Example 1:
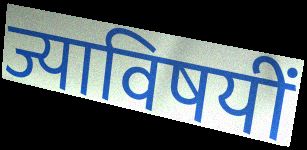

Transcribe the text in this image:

ज्याविषयीं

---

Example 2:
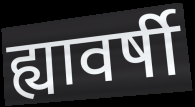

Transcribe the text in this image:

ह्यावर्षी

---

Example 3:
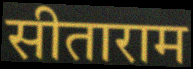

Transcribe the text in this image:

सीताराम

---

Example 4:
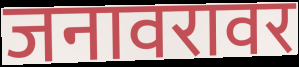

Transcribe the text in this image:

जनावरावर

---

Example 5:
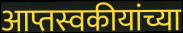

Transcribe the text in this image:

आप्तस्वकीयांच्या